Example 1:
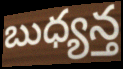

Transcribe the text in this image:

బుధ్యన్త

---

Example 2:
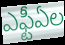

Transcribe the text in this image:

ఎఫ్టీఏల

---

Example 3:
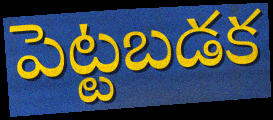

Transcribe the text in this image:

పెట్టబడక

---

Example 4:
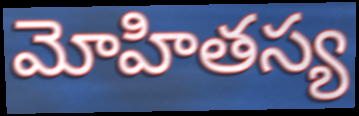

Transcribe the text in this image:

మోహితస్య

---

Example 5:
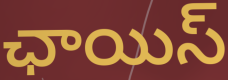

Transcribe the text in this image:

ఛాయిస్